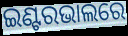
ଇଣ୍ଟରଭାଲରେ